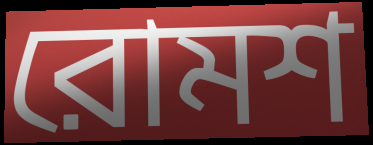
রোমশ